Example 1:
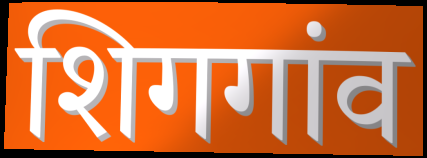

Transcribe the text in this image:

शिगगांव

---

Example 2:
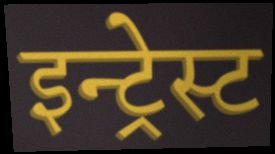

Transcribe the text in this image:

इन्ट्रेस्ट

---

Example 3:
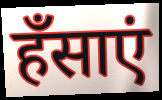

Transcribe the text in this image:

हँसाएं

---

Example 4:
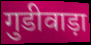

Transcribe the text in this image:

गुडीवाड़ा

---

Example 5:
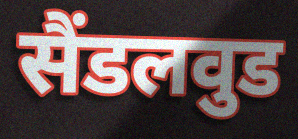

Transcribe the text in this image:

सैंडलवुड